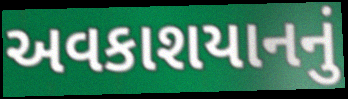
અવકાશયાનનું